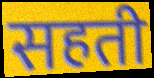
सहती